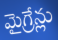
మైగ్రేన్లు